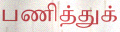
பணித்துக்